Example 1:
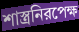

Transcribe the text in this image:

শাস্ত্রনিরপেক্ষ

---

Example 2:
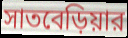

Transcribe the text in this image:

সাতবেড়িয়ার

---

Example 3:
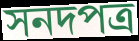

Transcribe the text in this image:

সনদপত্র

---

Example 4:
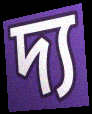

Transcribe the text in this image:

দ্য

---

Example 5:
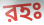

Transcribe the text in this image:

রহঃ